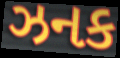
ઝનક